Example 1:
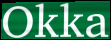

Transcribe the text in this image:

Okka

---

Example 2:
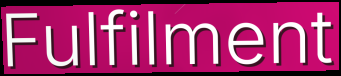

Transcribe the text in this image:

Fulfilment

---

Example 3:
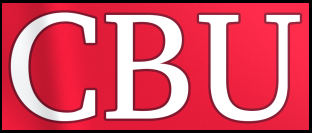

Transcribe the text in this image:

CBU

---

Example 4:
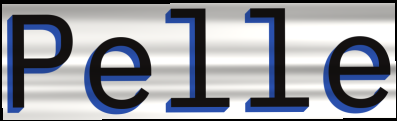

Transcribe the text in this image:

Pelle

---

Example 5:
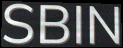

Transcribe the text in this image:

SBIN